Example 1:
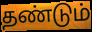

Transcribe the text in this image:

தண்டும்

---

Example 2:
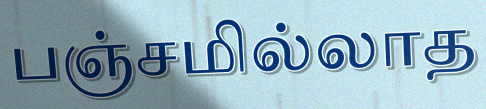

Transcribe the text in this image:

பஞ்சமில்லாத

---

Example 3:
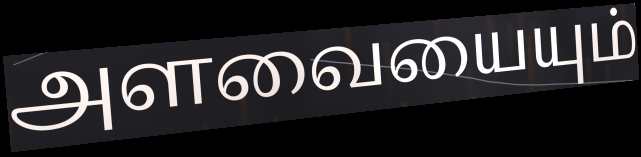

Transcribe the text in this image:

அளவையையும்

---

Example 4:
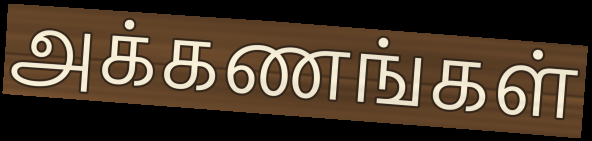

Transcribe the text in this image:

அக்கணங்கள்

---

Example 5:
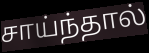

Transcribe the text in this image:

சாய்ந்தால்